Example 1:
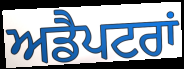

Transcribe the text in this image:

ਅਡੈਪਟਰਾਂ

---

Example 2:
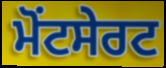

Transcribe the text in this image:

ਮੋਂਟਸੇਰਟ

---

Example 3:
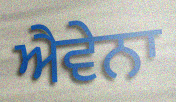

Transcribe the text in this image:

ਐਵੇਨਾ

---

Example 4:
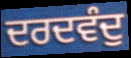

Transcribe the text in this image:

ਦਰਦਵੰਦੁ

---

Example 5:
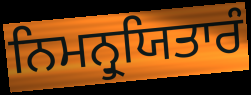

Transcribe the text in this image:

ਨਿਮਨ੍ਤ੍ਰਯਿਤਾਰੰ